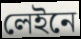
লেইনে